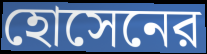
হোসেনের